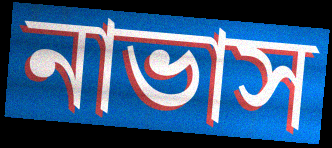
নাভাস